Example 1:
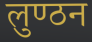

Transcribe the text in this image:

लुण्ठन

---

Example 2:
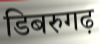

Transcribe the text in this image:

डिबरुगढ़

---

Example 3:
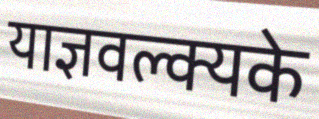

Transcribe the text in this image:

याज्ञवल्क्यके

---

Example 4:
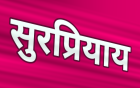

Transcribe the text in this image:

सुरप्रियाय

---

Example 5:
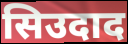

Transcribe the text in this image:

सिउदाद